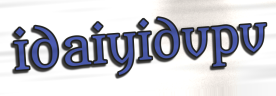
idaiyidupu